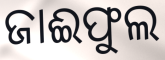
ଜାଈଫୁଲ